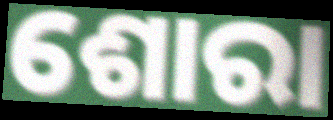
ଶୋରା